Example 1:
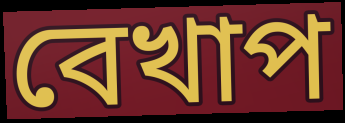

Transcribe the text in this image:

বেখাপ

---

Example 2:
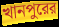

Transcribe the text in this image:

খানপুরের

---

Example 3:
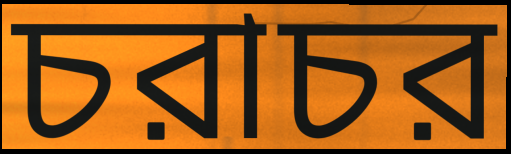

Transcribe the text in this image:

চরাচর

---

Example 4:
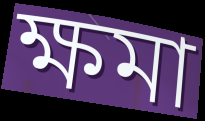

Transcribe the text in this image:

ক্ষমা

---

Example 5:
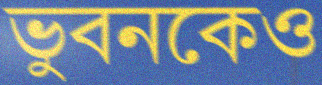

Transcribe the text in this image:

ভুবনকেও